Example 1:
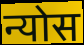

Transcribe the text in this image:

न्योस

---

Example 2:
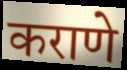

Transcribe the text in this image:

कराणे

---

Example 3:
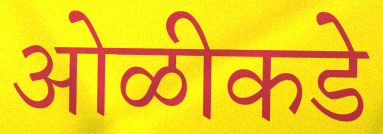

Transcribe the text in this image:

ओळीकडे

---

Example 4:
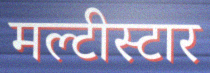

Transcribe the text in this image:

मल्टीस्टार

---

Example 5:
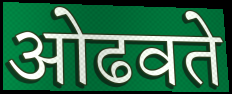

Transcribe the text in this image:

ओढवते